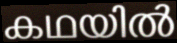
കഥയിൽ